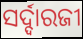
ସର୍ଦ୍ଦାରଜୀ